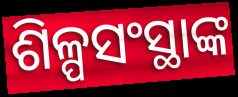
ଶିଳ୍ପସଂସ୍ଥାଙ୍କ